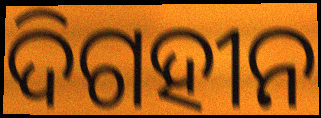
ଦିଗହୀନ